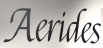
Aerides